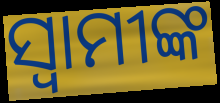
ସ୍ଵାମୀଙ୍କ